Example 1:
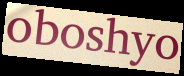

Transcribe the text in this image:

oboshyo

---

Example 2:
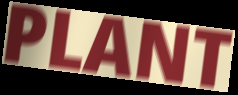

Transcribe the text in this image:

PLANT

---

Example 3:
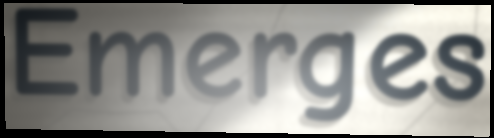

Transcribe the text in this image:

Emerges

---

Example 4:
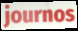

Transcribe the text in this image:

journos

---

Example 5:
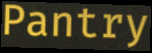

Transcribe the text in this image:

Pantry